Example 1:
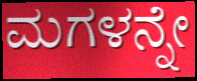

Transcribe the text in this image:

ಮಗಳನ್ನೇ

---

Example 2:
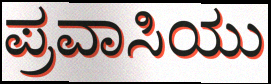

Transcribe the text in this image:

ಪ್ರವಾಸಿಯು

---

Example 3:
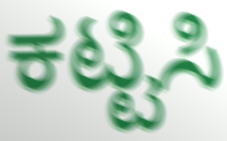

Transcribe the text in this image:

ಕಟ್ಟಿಸಿ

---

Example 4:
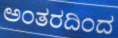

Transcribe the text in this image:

ಅಂತರದಿಂದ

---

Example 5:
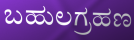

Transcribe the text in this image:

ಬಹುಲಗ್ರಹಣ